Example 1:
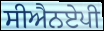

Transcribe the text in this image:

ਸੀਐਨਏਪੀ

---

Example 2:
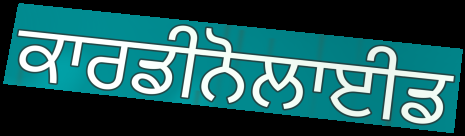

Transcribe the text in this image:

ਕਾਰਡੀਨੋਲਾਈਡ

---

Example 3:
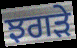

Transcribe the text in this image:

ਝਗਡ਼ੇ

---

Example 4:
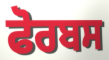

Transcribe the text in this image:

ਫੋਰਬਸ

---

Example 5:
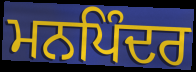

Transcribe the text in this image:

ਮਨਪਿੰਦਰ